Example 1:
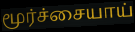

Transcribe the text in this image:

மூர்ச்சையாய்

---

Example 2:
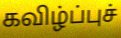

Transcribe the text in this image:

கவிழ்ப்புச்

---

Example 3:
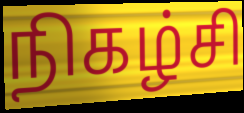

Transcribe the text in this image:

நிகழ்சி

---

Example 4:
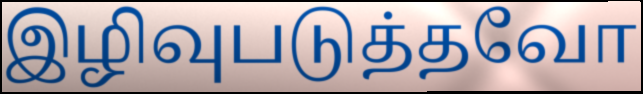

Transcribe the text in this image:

இழிவுபடுத்தவோ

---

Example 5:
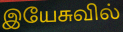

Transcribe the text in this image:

இயேசுவில்